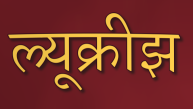
ल्यूक्रीझ